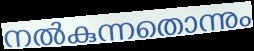
നൽകുന്നതൊന്നും